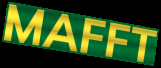
MAFFT